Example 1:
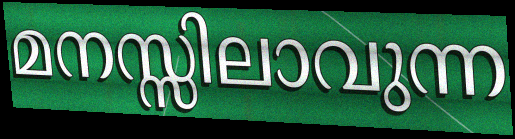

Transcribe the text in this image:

മനസ്സിലാവുന്ന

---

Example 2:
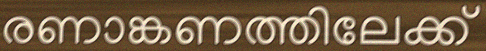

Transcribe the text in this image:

രണാങ്കണത്തിലേക്ക്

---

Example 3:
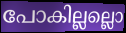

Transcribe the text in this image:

പോകില്ലല്ലൊ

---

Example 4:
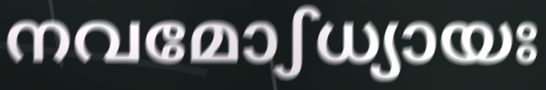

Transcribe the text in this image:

നവമോഽധ്യായഃ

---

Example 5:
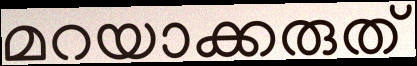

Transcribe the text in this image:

മറയാക്കരുത്